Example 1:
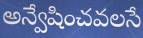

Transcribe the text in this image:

అన్వేషించవలసే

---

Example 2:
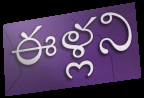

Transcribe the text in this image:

ఈళ్లని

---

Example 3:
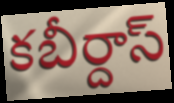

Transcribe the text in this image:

కబీర్దాస్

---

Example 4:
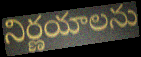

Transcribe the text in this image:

నిర్ణయాలను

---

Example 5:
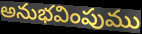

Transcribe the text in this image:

అనుభవింపుము